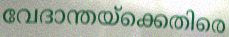
വേദാന്തയ്ക്കെതിരെ